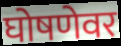
घोषणेवर